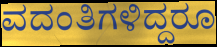
ವದಂತಿಗಳಿದ್ದರೂ